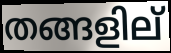
തങ്ങളില്